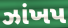
ઝાંખપ